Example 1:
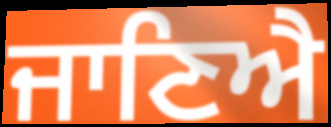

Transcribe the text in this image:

ਜਾਣਿਐ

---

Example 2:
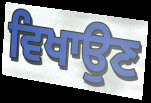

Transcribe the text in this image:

ਵਿਖਾਉਣ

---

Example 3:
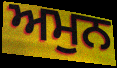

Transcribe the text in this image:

ਅਮੁਨ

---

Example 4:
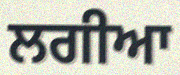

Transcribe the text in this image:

ਲਗੀਆ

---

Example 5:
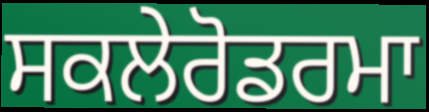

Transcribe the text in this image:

ਸਕਲੇਰੋਡਰਮਾ